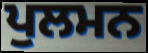
ਪੁਲਮਨ